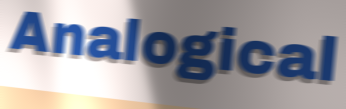
Analogical